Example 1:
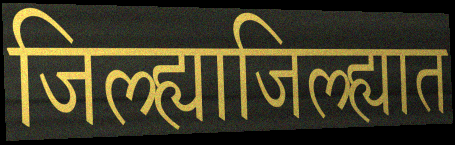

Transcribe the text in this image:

जिल्ह्याजिल्ह्यात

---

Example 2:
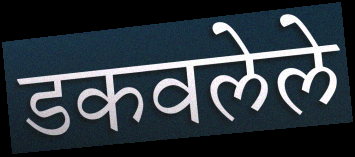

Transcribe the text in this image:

डकवलेले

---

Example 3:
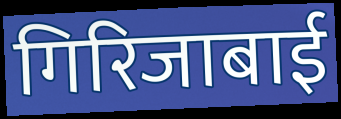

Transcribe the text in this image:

गिरिजाबाई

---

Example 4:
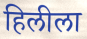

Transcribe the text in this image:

हिलीला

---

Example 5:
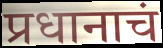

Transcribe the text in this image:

प्रधानाचं